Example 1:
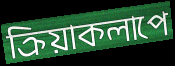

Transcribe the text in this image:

ক্রিয়াকলাপে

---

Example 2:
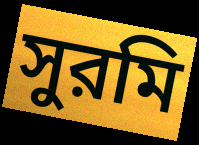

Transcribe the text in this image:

সুরমি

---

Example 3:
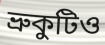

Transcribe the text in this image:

ভ্রুকুটিও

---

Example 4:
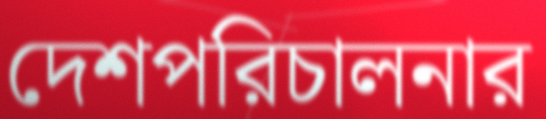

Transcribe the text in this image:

দেশপরিচালনার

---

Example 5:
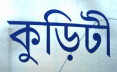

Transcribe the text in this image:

কুড়িটী